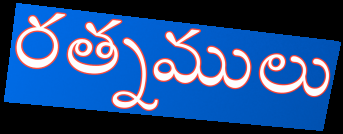
రత్నములు